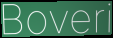
Boveri